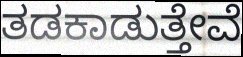
ತಡಕಾಡುತ್ತೇವೆ